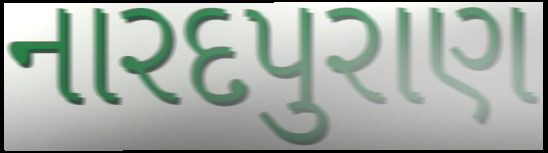
નારદપુરાણ